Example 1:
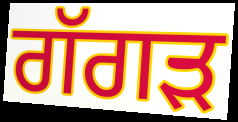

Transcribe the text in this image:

ਗੱਗੜ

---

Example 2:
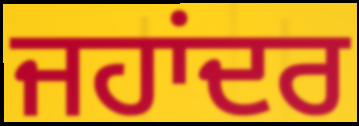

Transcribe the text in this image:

ਜਹਾਂਦਰ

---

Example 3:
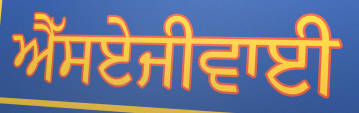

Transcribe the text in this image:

ਐੱਸਏਜੀਵਾਈ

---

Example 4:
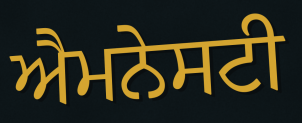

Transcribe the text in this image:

ਐਮਨੇਸਟੀ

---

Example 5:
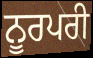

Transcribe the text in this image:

ਨੂਰਪਰੀ